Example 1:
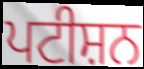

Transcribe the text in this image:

ਪਟੀਸ਼ਨ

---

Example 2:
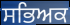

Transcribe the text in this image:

ਸਭਿਅਕ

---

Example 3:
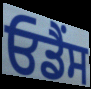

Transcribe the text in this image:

ਓਡੈਂਸ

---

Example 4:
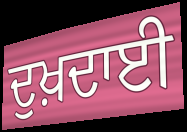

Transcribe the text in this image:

ਦੁਖ਼ਦਾਈ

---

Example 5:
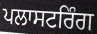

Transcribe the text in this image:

ਪਲਾਸਟਰਿੰਗ